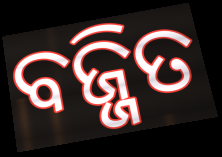
ବଜ୍ଜିତ